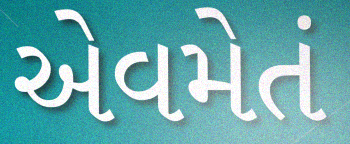
એવમેતં